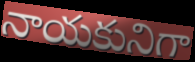
నాయకునిగా